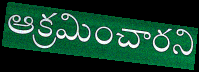
ఆక్రమించారని